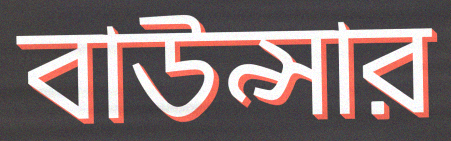
বাউন্সার